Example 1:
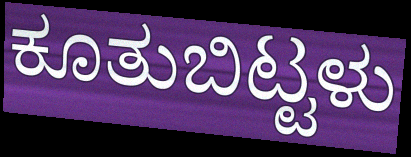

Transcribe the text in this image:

ಕೂತುಬಿಟ್ಟಳು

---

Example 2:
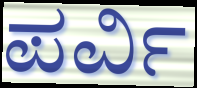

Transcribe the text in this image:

ಪರ್ವಿ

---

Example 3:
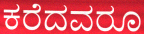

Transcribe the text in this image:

ಕರೆದವರೂ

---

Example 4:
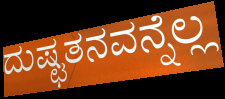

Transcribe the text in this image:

ದುಷ್ಟತನವನ್ನೆಲ್ಲ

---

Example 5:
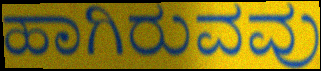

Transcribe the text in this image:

ಹಾಗಿರುವವು